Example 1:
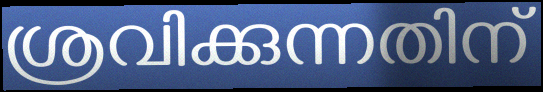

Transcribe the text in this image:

ശ്രവിക്കുന്നതിന്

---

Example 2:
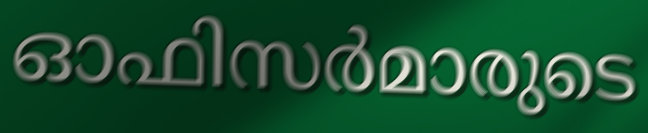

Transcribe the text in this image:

ഓഫിസർമാരുടെ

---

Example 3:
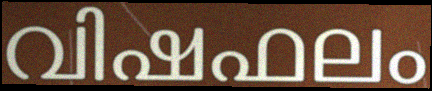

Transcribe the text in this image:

വിഷഫലം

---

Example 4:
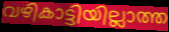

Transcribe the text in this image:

വഴികാട്ടിയില്ലാത്ത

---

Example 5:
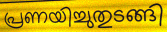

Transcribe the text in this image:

പ്രണയിച്ചുതുടങ്ങി